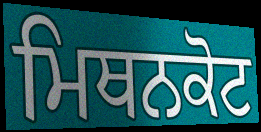
ਮਿਥਨਕੋਟ